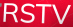
RSTV